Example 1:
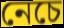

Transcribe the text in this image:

নেচে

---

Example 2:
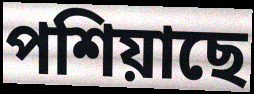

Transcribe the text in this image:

পশিয়াছে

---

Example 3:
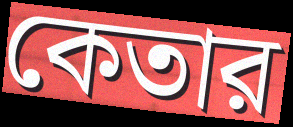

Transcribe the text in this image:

কেতার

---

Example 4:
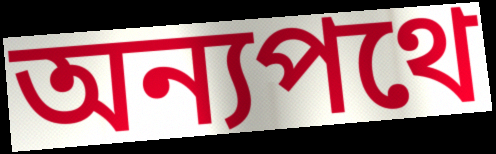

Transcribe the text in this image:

অন্যপথে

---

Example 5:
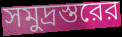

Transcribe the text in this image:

সমুদ্রস্তরের